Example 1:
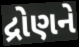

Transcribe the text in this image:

દ્રોણને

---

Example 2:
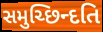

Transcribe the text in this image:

સમુચ્છિન્દતિ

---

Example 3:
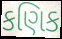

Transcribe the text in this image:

કણિક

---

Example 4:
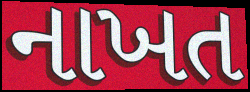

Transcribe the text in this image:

નાખત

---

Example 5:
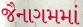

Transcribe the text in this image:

જૈનાગમમાં